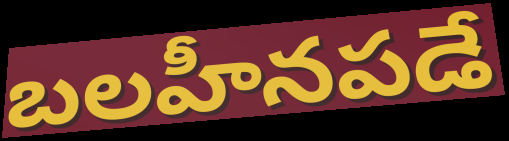
బలహీనపడే